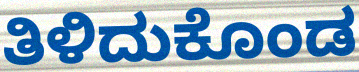
ತಿಳಿದುಕೊಂಡ